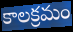
కాలక్రమం